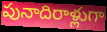
పునాదిరాళ్లుగా